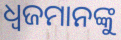
ଧ୍ୱଜମାନଙ୍କୁ